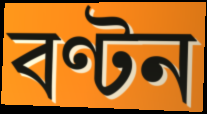
বণ্টন